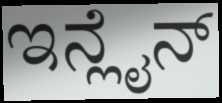
ಇನ್ಲೈನ್